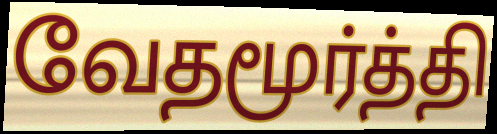
வேதமூர்த்தி